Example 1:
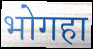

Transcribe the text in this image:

भोगहा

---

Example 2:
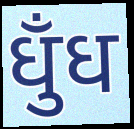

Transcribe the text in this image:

धुँध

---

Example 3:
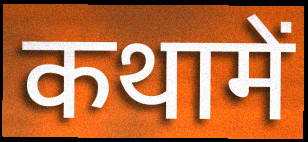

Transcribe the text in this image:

कथामें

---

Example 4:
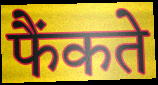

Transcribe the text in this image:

फैंकते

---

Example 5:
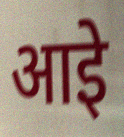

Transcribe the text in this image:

आइे